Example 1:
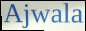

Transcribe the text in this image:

Ajwala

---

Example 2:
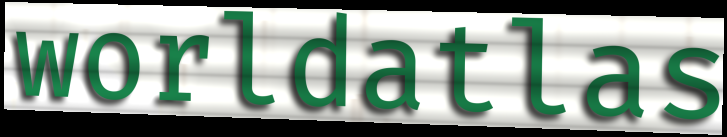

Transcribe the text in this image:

worldatlas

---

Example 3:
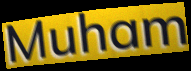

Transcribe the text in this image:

Muham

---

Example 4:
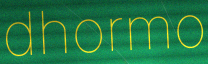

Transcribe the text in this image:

dhormo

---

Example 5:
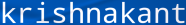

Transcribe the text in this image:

krishnakant